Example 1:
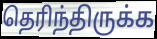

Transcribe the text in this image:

தெரிந்திருக்க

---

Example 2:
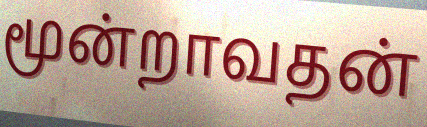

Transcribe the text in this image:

மூன்றாவதன்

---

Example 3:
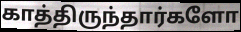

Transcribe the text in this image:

காத்திருந்தார்களோ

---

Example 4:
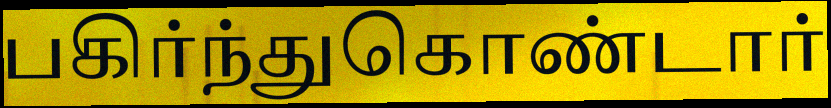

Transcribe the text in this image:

பகிர்ந்துகொண்டார்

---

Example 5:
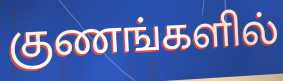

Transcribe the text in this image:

குணங்களில்